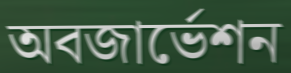
অবজার্ভেশন